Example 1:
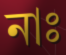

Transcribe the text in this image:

নাঃ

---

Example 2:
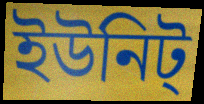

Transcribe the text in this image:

ইউনিট্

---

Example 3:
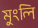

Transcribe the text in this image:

মুংলি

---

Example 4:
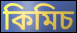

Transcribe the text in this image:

কিমিচ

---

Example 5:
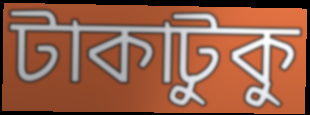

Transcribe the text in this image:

টাকাটুকু